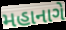
મહાનાગે